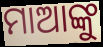
ମାଆଙ୍କୁ